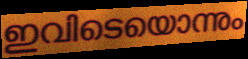
ഇവിടെയൊന്നും